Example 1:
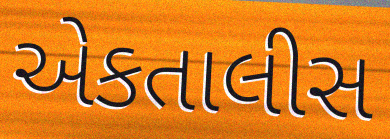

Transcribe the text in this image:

એકતાલીસ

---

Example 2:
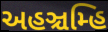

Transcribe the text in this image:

અહઞ્ચમ્હિ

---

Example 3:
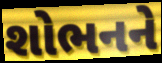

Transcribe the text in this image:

શોભનને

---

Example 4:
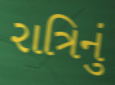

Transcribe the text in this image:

રાત્રિનું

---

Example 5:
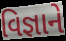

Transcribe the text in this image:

વિજ્ઞાને